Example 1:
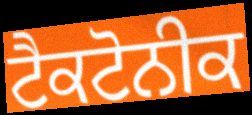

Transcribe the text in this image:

ਟੈਕਟੋਨੀਕ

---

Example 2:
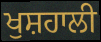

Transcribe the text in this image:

ਖੁਸ਼ਹਾਲੀ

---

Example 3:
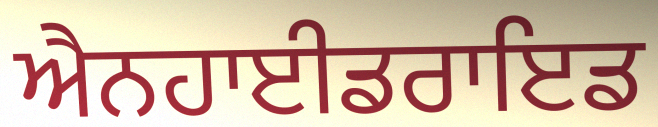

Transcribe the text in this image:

ਐਨਹਾਈਡਰਾਇਡ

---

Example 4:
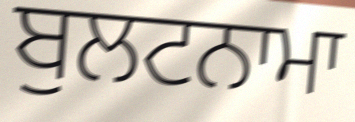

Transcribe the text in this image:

ਬੁਲਟਨਾਮਾ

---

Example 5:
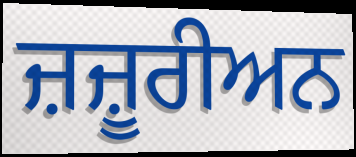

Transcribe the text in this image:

ਜ਼ਜ਼ੂਰੀਅਨ